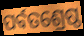
ପର୍ବତଶ୍ରେଷ୍ଠ